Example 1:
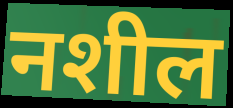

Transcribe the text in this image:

नशील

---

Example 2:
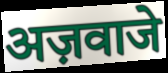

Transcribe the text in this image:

अज़वाजे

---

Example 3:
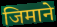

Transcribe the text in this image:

जिमाने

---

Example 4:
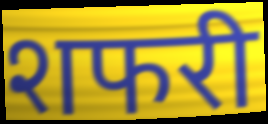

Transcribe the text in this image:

शफरी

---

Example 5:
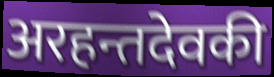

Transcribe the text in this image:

अरहन्तदेवकी